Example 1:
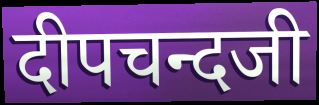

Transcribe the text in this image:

दीपचन्दजी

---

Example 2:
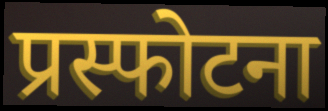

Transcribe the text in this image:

प्रस्फोटना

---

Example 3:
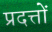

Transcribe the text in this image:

प्रदत्तों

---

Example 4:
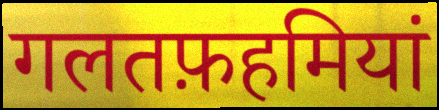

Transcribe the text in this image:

गलतफ़हमियां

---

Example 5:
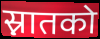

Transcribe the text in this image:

स्नातको